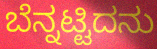
ಬೆನ್ನಟ್ಟಿದನು